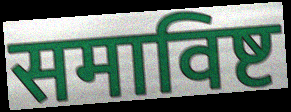
समाविष्ट